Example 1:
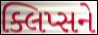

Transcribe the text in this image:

ક્લિપ્સને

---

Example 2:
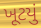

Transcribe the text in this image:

ખૂટયું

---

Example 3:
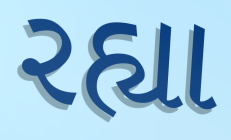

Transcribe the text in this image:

રહ્યા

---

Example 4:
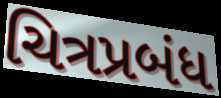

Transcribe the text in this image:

ચિત્રપ્રબંધ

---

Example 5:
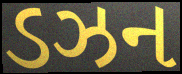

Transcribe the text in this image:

ડઝન